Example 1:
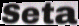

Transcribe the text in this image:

Seta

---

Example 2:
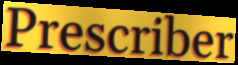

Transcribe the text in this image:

Prescriber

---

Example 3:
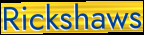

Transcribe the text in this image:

Rickshaws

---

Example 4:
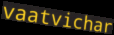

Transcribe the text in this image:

vaatvichar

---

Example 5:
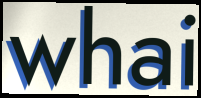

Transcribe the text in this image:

whai